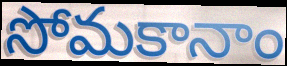
సోమకానాం